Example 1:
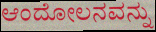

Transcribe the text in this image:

ಆಂದೋಲನವನ್ನು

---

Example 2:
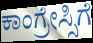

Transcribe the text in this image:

ಕಾಂಗ್ರೇಸ್ಸಿಗೆ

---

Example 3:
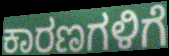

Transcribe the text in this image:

ಕಾರಣಗಳಿಗೆ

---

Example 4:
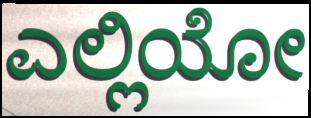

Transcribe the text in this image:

ಎಲ್ಲಿಯೋ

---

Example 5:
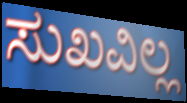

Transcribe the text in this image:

ಸುಖವಿಲ್ಲ